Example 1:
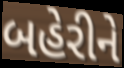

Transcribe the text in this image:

બહેરીને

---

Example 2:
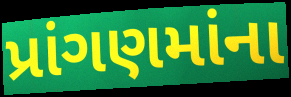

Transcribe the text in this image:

પ્રાંગણમાંના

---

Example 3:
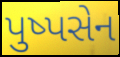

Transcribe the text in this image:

પુષ્પસેન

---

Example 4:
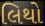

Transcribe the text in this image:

લિથો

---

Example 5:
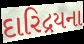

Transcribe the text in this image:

દારિદ્રયના